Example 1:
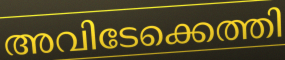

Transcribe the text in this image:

അവിടേക്കെത്തി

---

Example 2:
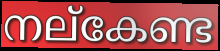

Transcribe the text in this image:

നല്കേണ്ട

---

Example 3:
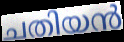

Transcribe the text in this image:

ചതിയൻ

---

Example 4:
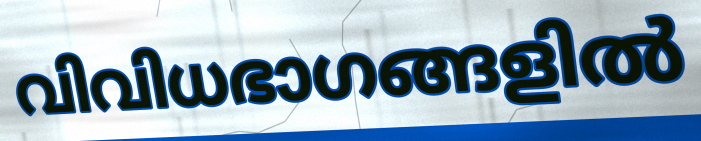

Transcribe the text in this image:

വിവിധഭാഗങ്ങളിൽ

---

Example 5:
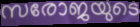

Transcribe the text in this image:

സരോജയുടെ